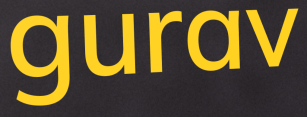
gurav